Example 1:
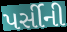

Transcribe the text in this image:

પર્સીની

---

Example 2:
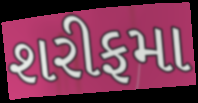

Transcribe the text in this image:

શરીફમા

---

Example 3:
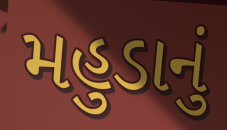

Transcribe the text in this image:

મહુડાનું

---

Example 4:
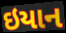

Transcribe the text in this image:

ઇયાન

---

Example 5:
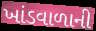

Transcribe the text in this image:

ખાંડવાળાની